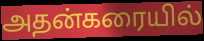
அதன்கரையில்